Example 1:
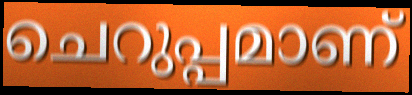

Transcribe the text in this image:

ചെറുപ്പമാണ്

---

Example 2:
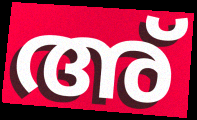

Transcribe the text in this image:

അ്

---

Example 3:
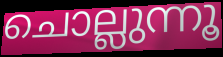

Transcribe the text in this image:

ചൊല്ലുന്നൂ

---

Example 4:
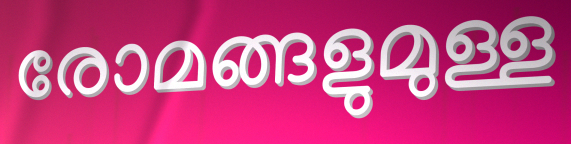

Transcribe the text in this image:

രോമങ്ങളുമുള്ള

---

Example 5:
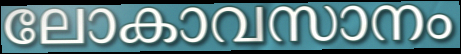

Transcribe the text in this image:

ലോകാവസാനം